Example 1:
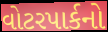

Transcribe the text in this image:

વોટરપાર્કનો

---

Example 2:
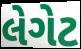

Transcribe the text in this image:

લેગેટ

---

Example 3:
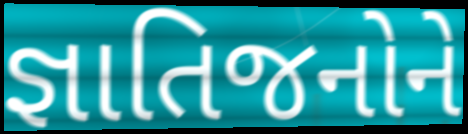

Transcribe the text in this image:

જ્ઞાતિજનોને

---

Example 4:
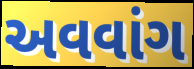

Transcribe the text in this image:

અવવાંગ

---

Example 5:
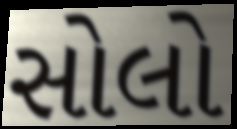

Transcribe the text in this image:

સોલો